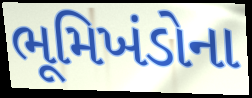
ભૂમિખંડોના